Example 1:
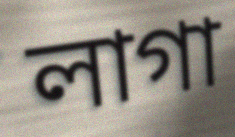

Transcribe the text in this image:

লাগা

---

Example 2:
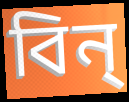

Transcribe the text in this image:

বিন্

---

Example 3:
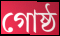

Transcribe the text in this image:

গোষ্ঠ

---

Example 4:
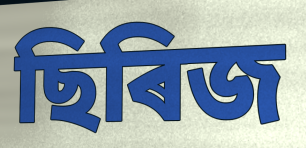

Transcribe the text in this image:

ছিৰিজ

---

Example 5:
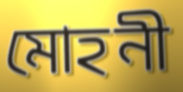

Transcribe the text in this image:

মোহনী